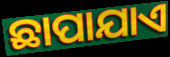
ଛାପାଯାଏ